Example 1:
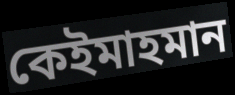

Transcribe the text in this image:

কেইমাহমান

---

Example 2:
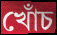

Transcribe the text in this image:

খোঁচ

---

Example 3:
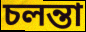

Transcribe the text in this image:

চলন্তা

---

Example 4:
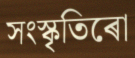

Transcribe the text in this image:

সংস্কৃতিৰো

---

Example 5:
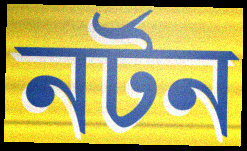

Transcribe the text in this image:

নৰ্টন